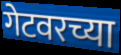
गेटवरच्या